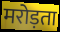
मरोड़ता